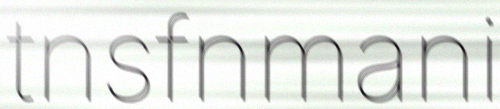
tnsfnmani